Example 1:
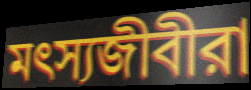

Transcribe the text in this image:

মৎস্যজীবীরা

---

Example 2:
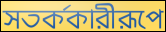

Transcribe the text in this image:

সতর্ককারীরূপে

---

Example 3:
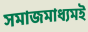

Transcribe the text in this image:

সমাজমাধ্যমই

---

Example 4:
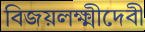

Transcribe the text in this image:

বিজয়লক্ষ্মীদেবী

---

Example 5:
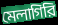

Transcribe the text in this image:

মেলাগিরি